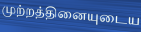
முற்றத்தினையுடைய